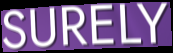
SURELY